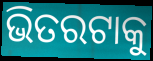
ଭିତରଟାକୁ